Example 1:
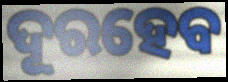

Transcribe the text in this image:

ଦୂରହେବ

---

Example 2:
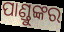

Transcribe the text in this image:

ପାଣ୍ଡୁଙ୍କର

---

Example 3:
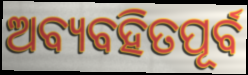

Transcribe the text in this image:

ଅବ୍ୟବହିତପୂର୍ବ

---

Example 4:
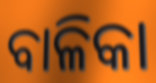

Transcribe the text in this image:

ବାଳିକା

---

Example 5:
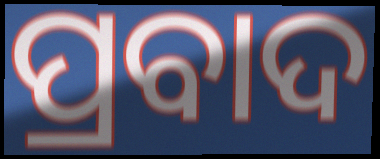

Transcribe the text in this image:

ପ୍ରବାଦ